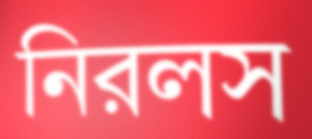
নিরলস